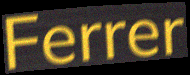
Ferrer